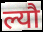
ल्यौ